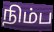
நிம்ப